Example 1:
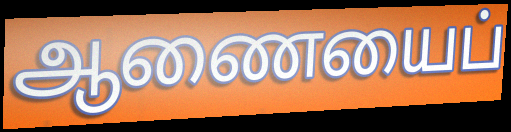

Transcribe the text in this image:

ஆணையைப்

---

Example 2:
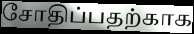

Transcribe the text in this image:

சோதிப்பதற்காக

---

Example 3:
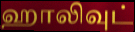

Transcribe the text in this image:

ஹாலிவுட்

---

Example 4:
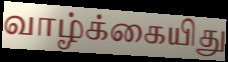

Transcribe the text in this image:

வாழ்க்கையிது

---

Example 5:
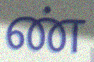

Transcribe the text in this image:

ண்